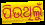
ପିଉଥିଲୁଁ